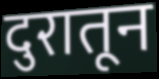
दुरातून